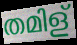
തമിള്